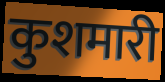
कुशमारी